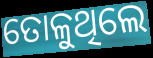
ତୋଳୁଥିଲେ